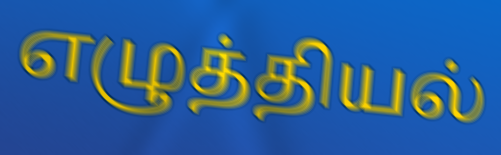
எழுத்தியல்